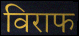
विराफ